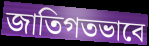
জাতিগতভাবে